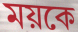
ময়কে